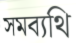
সমব্যথি